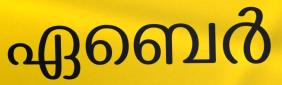
ഏബെർ